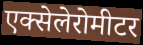
एक्सेलेरोमीटर